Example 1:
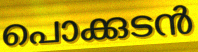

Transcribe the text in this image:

പൊക്കുടൻ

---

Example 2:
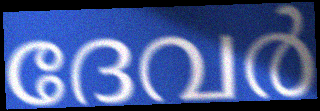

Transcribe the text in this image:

ദേവർ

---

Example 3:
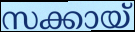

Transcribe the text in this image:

സക്കായ്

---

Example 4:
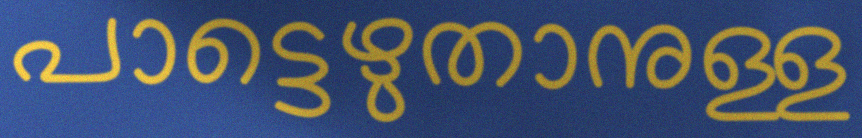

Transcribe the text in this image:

പാട്ടെഴുതാനുള്ള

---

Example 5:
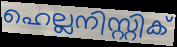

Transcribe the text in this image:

ഹെല്ലനിസ്റ്റിക്